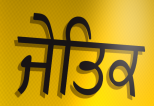
ਜੇਤਿਕ